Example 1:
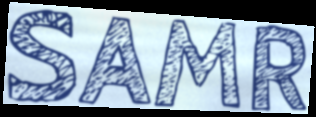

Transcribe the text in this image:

SAMR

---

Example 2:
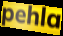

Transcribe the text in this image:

pehla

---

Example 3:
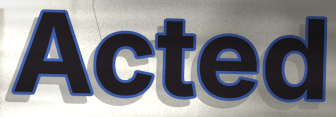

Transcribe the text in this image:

Acted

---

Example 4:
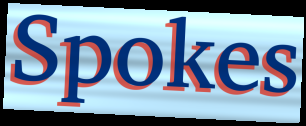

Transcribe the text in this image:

Spokes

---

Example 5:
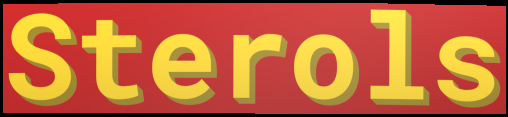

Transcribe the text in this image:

Sterols